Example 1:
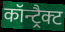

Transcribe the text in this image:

कॉन्‍ट्रैक्‍ट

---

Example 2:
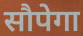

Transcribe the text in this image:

सौपेगा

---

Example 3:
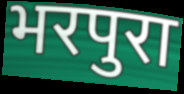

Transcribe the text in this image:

भरपुरा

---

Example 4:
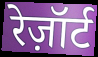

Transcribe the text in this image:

रेज़ॉर्ट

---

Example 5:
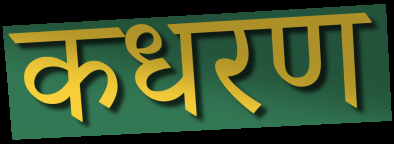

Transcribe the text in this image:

कधरण